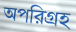
অপরিগ্রহ